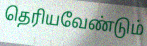
தெரியவேண்டும்